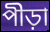
পীড়া